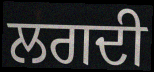
ਲਗਦੀ